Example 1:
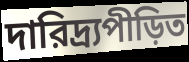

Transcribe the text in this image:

দারিদ্র্যপীড়িত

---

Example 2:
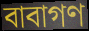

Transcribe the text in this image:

বাবাগণ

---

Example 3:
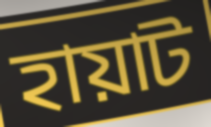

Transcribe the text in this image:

হায়াট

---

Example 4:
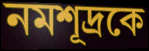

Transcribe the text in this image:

নমশূদ্রকে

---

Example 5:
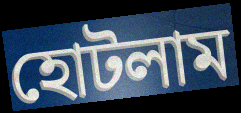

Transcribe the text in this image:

হোটলাম